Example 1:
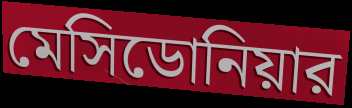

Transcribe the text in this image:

মেসিডোনিয়ার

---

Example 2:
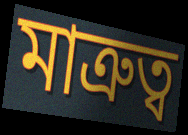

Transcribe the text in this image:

মাত্রুত্ব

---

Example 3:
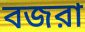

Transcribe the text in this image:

বজরা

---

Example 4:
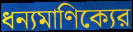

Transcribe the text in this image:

ধন্যমাণিক্যের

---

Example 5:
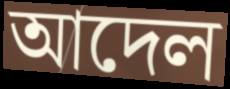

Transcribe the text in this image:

আদেল